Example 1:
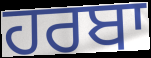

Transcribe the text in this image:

ਹਰਬਾ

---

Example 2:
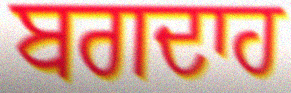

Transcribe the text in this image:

ਬਗਦਾਹ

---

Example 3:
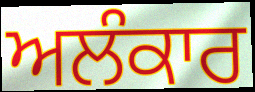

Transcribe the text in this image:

ਅਲੰਕਾਰ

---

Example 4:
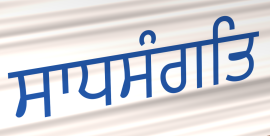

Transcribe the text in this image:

ਸਾਧਸੰਗਤਿ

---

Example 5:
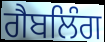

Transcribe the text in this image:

ਗੈਬਲਿੰਗ